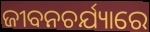
ଜୀବନଚର୍ଯ୍ୟାରେ